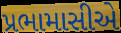
પ્રભામાસીએ